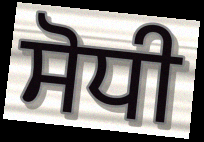
ਸੋਧੀ